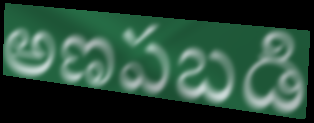
అణపబడి